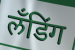
लँडिंग